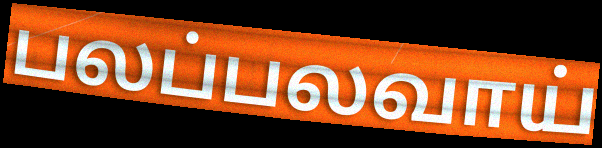
பலப்பலவாய்